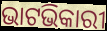
ଭାଟଭିକାରୀ